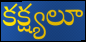
కక్ష్యలూ